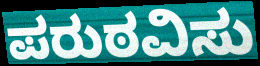
ಪರುಠವಿಸು